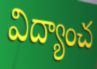
విద్యాంచ